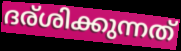
ദര്ശിക്കുന്നത്